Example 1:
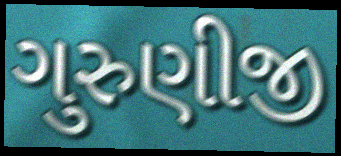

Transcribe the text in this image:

ગુરુણીજી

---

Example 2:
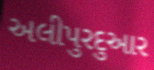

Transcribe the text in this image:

અલીપુરદુઆર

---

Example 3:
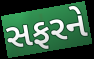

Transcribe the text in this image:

સફરને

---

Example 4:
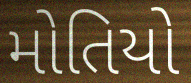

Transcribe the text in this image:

મોતિયો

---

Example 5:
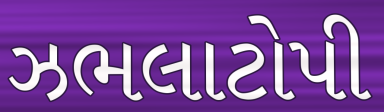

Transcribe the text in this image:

ઝભલાટોપી